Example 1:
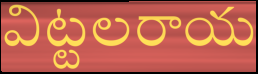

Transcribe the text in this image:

విట్టలరాయ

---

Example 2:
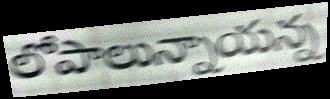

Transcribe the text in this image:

లోపాలున్నాయన్న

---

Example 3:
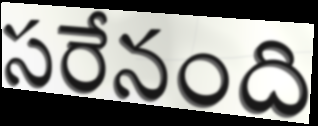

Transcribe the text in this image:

సరేనంది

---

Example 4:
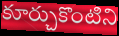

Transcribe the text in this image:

కూర్చుకొంటిని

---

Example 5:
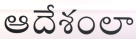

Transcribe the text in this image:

ఆదేశంలా